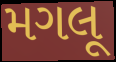
મગલૂ